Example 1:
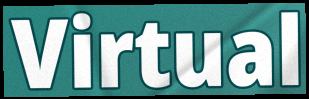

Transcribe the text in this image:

Virtual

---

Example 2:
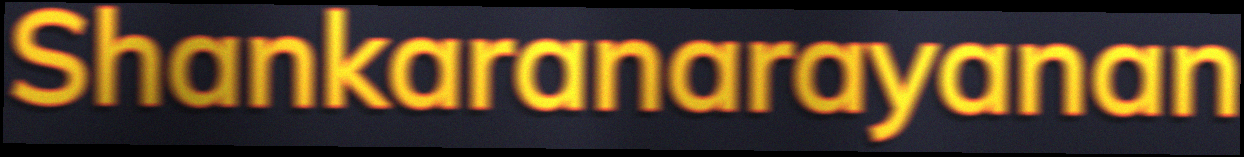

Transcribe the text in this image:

Shankaranarayanan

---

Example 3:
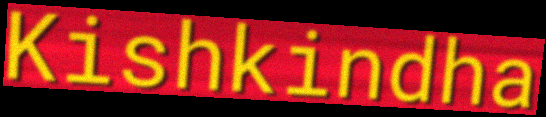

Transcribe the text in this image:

Kishkindha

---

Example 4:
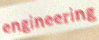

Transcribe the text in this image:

engineering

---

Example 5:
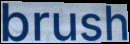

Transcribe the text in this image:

brush